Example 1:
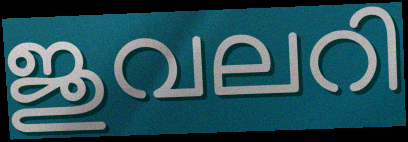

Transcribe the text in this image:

ജുവലറി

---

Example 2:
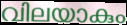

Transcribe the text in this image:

വിലയാകും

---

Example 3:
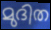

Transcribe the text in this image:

മുദിത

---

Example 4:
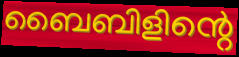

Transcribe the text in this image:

ബൈബിളിന്റെ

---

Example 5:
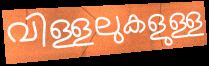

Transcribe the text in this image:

വിള്ളലുകളുള്ള